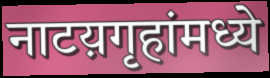
नाटय़गृहांमध्ये